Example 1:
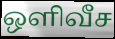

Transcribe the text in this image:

ஒளிவீச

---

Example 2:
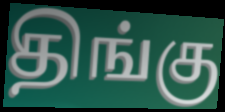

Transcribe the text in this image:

திங்கு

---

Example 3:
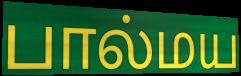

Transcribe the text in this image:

பால்மய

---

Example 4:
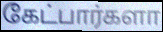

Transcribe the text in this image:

கேட்பார்களா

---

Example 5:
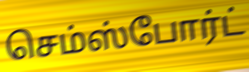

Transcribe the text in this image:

செம்ஸ்போர்ட்